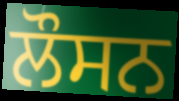
ਲੌਸਨ